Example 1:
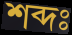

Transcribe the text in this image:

শব্দঃ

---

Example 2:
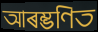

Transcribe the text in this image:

আৰম্ভণিত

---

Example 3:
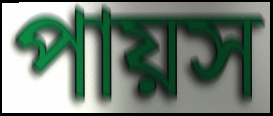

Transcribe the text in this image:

পায়স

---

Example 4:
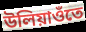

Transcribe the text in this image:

উলিয়াওঁতে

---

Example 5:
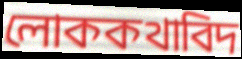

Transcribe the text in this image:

লোককথাবিদ